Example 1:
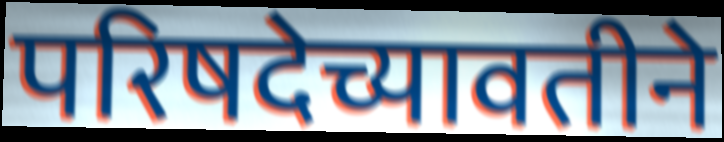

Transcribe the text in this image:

परिषदेच्यावतीने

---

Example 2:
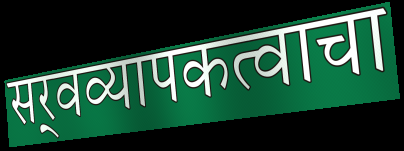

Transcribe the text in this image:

सर्वव्यापकत्वाचा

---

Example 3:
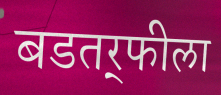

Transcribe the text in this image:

बडतर्फीला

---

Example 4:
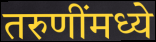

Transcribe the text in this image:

तरुणींमध्ये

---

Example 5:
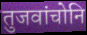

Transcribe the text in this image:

तुजवांचोनि